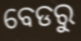
ବେଡରୁ